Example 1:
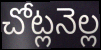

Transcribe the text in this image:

చోట్లనెల్ల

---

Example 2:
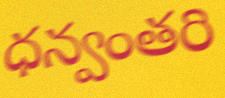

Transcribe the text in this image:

ధన్వంతరి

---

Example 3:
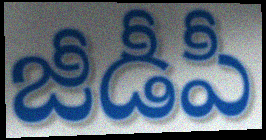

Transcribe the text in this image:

జీడీపీ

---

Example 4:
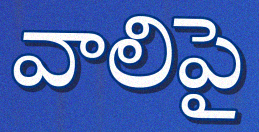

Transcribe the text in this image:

వాలిపై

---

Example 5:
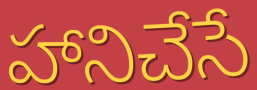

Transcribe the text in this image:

హానిచేసే